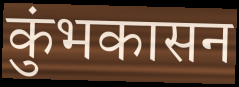
कुंभकासन